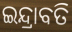
ଇନ୍ଦ୍ରାବତି